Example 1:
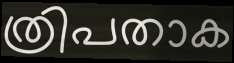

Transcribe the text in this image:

ത്രിപതാക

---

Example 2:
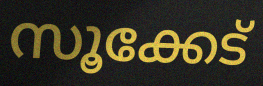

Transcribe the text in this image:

സൂക്കേട്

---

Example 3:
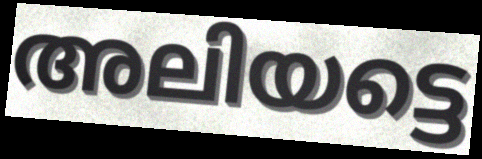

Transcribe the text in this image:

അലിയട്ടെ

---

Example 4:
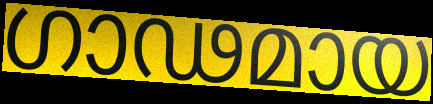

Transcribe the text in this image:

ഗാഢമായ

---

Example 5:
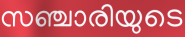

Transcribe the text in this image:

സഞ്ചാരിയുടെ